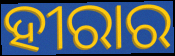
ହୀରାର